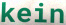
kein